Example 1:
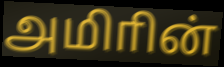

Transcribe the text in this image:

அமிரின்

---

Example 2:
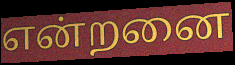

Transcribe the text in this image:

என்றனை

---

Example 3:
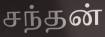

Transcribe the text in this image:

சந்தன்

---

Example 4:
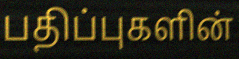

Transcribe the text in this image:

பதிப்புகளின்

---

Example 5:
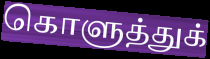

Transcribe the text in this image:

கொளுத்துக்